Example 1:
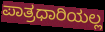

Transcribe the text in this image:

ಪಾತ್ರಧಾರಿಯಲ್ಲ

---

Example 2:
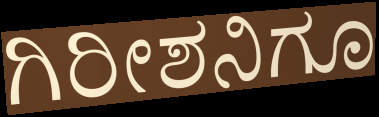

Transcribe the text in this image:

ಗಿರೀಶನಿಗೂ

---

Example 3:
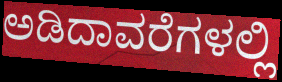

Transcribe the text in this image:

ಅಡಿದಾವರೆಗಳಲ್ಲಿ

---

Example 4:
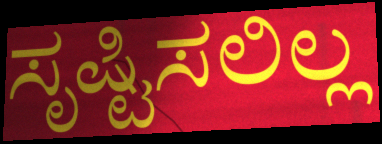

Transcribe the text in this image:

ಸೃಷ್ಟಿಸಲಿಲ್ಲ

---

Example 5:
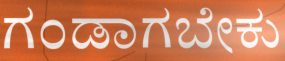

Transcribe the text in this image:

ಗಂಡಾಗಬೇಕು